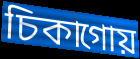
চিকাগোয়